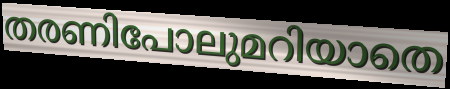
തരണിപോലുമറിയാതെ